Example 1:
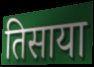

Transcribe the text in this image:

तिसाया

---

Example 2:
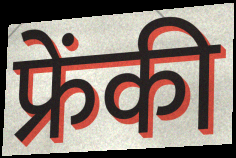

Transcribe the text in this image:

फ्रेंकी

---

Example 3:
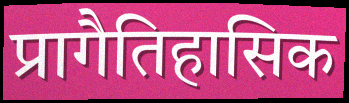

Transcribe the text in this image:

प्रागैतिहासिक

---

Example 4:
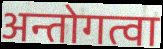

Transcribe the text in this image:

अन्तोगत्वा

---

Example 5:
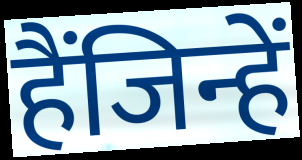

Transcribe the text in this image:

हैंजिन्हें